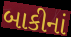
બાકીનાં